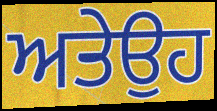
ਅਤੇਉਹ